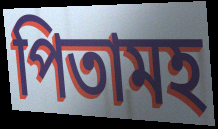
পিতামহ